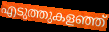
എടുത്തുകളഞ്ഞ്